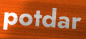
potdar